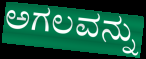
ಅಗಲವನ್ನು